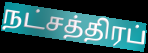
நட்சத்திரப்